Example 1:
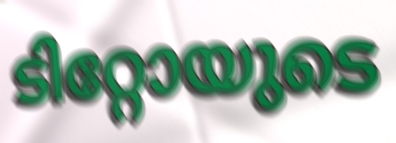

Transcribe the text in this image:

ടിറ്റോയുടെ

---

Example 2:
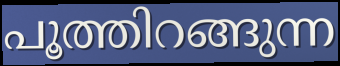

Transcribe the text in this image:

പൂത്തിറങ്ങുന്ന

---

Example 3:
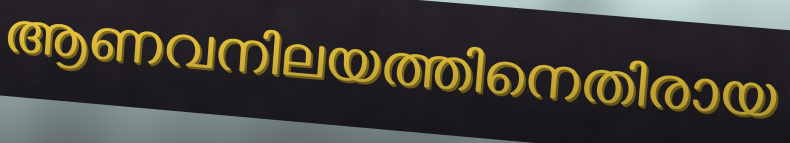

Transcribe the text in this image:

ആണവനിലയത്തിനെതിരായ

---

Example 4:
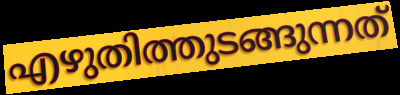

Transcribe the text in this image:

എഴുതിത്തുടങ്ങുന്നത്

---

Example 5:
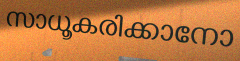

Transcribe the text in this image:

സാധൂകരിക്കാനോ